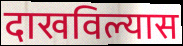
दाखविल्यास